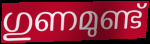
ഗുണമുണ്ട്